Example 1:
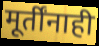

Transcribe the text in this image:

मूर्तींनाही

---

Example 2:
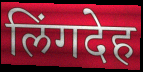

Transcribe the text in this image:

लिंगदेह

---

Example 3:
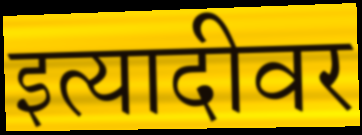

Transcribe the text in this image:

इत्यादीवर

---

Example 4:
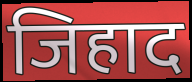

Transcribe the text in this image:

जिहाद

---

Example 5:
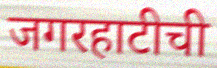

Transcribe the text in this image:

जगरहाटीची